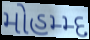
મોહમ્મ્દ